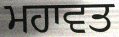
ਮਹਾਵਤ